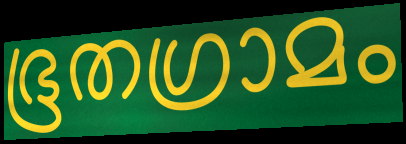
ഭൂതഗ്രാമം